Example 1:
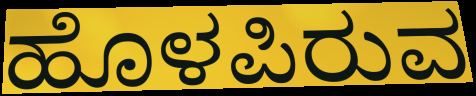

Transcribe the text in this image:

ಹೊಳಪಿರುವ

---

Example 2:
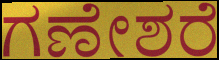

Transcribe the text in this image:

ಗಣೇಶರೆ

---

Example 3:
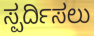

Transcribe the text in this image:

ಸ್ಪರ್ದಿಸಲು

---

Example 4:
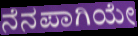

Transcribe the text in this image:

ನೆನಪಾಗಿಯೇ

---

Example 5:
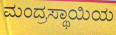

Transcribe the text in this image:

ಮಂದ್ರಸ್ಥಾಯಿಯ